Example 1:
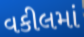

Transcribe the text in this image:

વકીલમાં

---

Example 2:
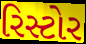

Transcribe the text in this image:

રિસ્ટોર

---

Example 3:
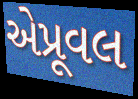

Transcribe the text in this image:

એપ્રૂવલ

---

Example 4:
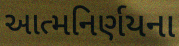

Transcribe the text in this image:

આત્મનિર્ણયના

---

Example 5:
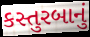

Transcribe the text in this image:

કસ્તુરબાનું